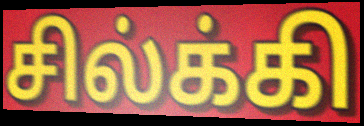
சில்க்கி